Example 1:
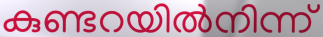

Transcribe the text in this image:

കുണ്ടറയിൽനിന്ന്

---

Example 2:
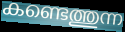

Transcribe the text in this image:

കണ്ടെത്തുന്ന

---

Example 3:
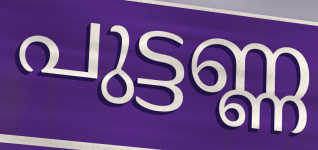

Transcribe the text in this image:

പുട്ടണ്ണ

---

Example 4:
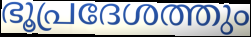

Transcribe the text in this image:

ഭൂപ്രദേശത്തും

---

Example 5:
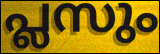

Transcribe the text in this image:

പ്ലസും